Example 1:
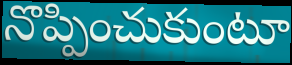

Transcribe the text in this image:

నొప్పించుకుంటూ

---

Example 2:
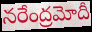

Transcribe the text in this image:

నరేంద్రమోదీ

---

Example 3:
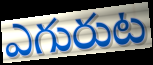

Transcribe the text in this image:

ఎగురుట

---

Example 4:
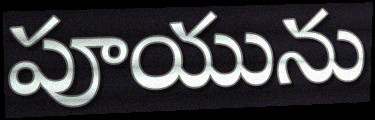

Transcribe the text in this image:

పూయును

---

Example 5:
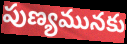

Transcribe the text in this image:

పుణ్యమునకు